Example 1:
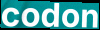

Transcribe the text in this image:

codon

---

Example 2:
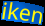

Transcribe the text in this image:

iken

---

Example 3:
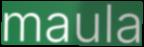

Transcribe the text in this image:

maula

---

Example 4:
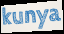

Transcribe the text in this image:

kunya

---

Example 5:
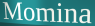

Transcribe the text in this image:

Momina